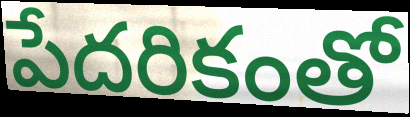
పేదరికంతో